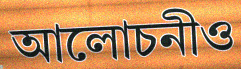
আলোচনীও